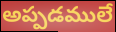
అప్పడములే